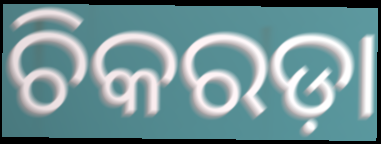
ଚିକରଡ଼ା